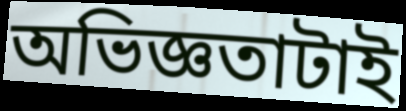
অভিজ্ঞতাটাই